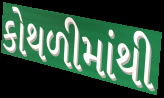
કોથળીમાંથી